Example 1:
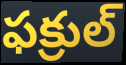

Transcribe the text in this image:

ఫక్రుల్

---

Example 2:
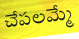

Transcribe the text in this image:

చేపలమ్మే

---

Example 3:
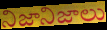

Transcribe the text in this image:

నిజానిజాలు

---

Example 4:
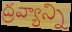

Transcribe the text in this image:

ద్రవ్యాన్ని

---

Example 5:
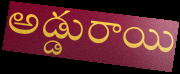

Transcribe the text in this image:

అడ్డురాయి